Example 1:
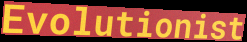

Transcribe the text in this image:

Evolutionist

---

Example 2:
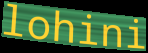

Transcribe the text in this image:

lohini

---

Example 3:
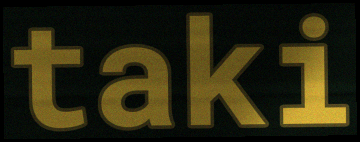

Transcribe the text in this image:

taki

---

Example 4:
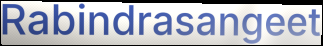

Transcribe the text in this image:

Rabindrasangeet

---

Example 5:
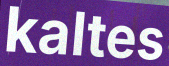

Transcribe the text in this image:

kaltes